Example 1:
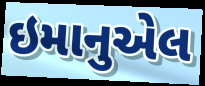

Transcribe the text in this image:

ઇમાનુએલ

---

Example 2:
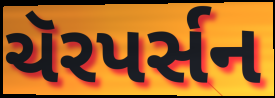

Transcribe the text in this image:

ચૅરપર્સન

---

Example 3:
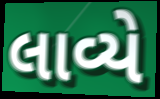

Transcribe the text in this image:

લાવ્યે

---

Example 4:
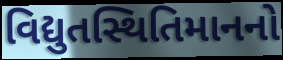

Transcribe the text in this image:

વિદ્યુતસ્થિતિમાનનો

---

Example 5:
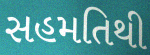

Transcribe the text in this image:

સહમતિથી